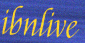
ibnlive